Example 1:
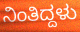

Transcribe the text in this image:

ನಿಂತಿದ್ದಳು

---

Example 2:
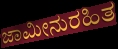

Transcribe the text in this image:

ಜಾಮೀನುರಹಿತ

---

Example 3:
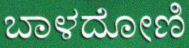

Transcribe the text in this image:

ಬಾಳದೋಣಿ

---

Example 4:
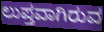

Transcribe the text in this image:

ಲುಪ್ತವಾಗಿರುವ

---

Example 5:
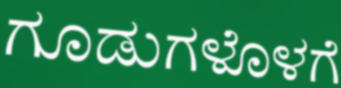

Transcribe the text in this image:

ಗೂಡುಗಳೊಳಗೆ